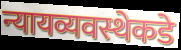
न्यायव्यवस्थेकडे